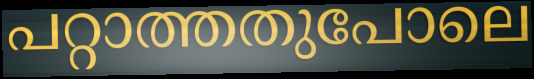
പറ്റാത്തതുപോലെ